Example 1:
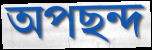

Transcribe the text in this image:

অপছন্দ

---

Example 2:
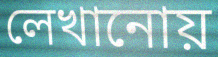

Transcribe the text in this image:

লেখানোয়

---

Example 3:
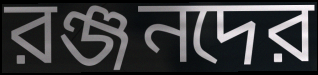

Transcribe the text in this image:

রঞ্জনদের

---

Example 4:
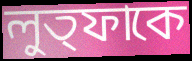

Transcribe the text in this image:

লুত্ফাকে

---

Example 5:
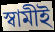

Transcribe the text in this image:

স্বামীই